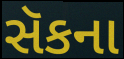
સૅકના